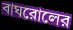
বাঘরোলের